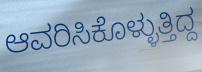
ಆವರಿಸಿಕೊಳ್ಳುತ್ತಿದ್ದ